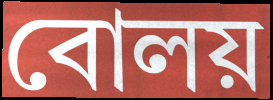
বোলয়